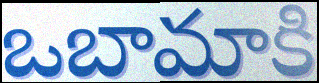
ఒబామాకి